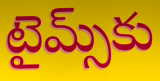
టైమ్స్‌కు